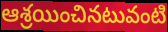
ఆశ్రయించినటువంటి